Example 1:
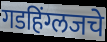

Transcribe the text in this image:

गडहिंग्लजचे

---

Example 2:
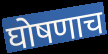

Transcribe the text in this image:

घोषणाच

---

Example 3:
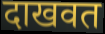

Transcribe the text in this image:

दाखवत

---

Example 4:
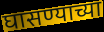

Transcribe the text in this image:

घासण्याच्या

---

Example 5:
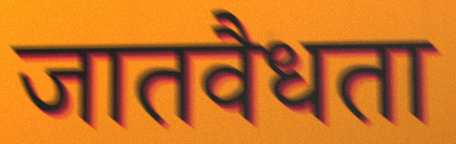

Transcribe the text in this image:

जातवैधता